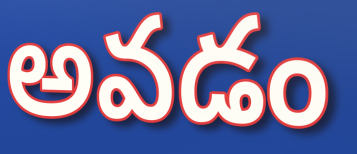
అవడం